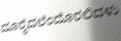
ದೂರೈದಲೆಂದೊರಲಿದಳು